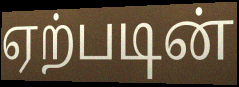
ஏற்படின்